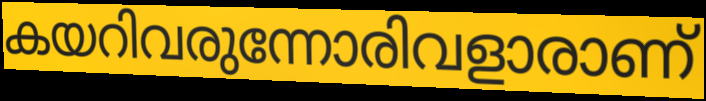
കയറിവരുന്നോരിവളാരാണ്